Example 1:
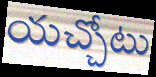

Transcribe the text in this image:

యచ్చోటు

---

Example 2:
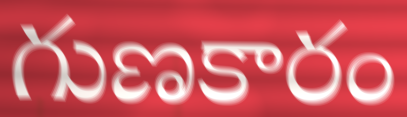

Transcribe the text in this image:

గుణకారం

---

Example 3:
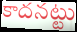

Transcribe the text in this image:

కాదనట్టు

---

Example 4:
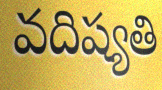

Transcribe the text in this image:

వదిష్యతి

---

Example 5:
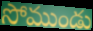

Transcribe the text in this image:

సోముండు